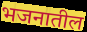
भजनातील